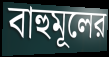
বাহুমূলের